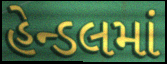
હેન્ડલમાં